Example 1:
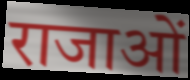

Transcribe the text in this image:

राजाओं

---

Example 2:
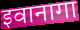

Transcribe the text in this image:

इवानागा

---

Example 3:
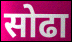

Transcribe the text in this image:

सोढा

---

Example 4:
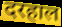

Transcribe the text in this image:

दरहाल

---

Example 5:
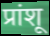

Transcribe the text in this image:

प्रांशू